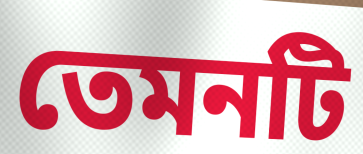
তেমনটি